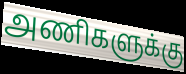
அணிகளுக்கு